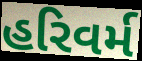
હરિવર્મ